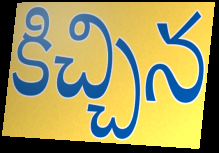
కిచ్చిన